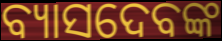
ବ୍ୟାସଦେବଙ୍କ